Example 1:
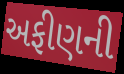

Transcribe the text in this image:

અફીણની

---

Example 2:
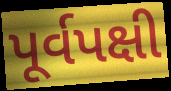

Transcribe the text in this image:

પૂર્વપક્ષી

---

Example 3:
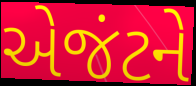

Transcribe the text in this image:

એજંટને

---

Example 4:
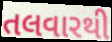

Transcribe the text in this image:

તલવારથી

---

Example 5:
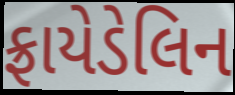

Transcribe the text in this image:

ફ્રાયેડેલિન